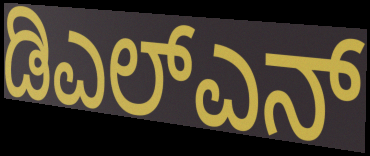
ಡಿಎಲ್ಎನ್